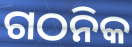
ଗଠନିକ